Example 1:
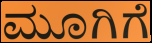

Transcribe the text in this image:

ಮೂಗಿಗೆ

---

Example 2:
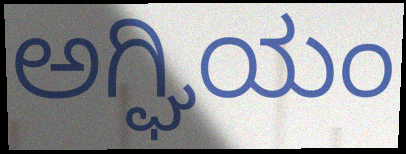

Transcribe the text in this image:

ಅಗ್ಘಿಯಂ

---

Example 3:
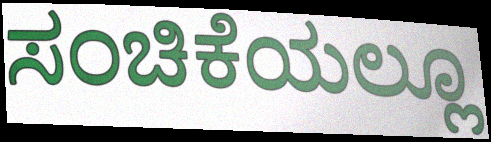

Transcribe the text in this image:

ಸಂಚಿಕೆಯಲ್ಲೂ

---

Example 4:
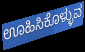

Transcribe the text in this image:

ಊಹಿಸಿಕೊಳ್ಳುವ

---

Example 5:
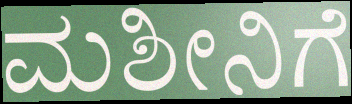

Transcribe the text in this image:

ಮಶೀನಿಗೆ